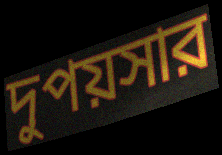
দুপয়সার